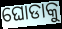
ଘୋଡାକୁ